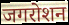
जगरोशन